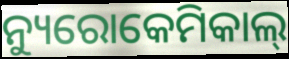
ନ୍ୟୁରୋକେମିକାଲ୍